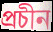
প্ৰচীন